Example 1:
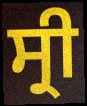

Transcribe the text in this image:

ਸ੍ਰੀ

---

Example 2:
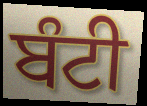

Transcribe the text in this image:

ਬੰਟੀ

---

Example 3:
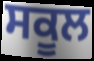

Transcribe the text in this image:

ਸਕੂਲ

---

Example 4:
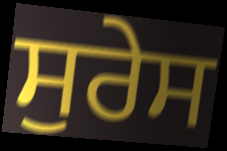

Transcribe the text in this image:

ਸੁਰੇਸ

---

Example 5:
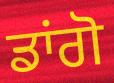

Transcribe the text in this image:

ਡਾਂਗੋ